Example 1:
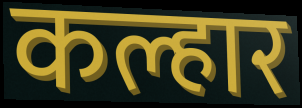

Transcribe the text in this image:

कल्हार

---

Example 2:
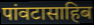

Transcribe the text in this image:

पांवटासाहिब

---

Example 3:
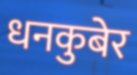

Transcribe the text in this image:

धनकुबेर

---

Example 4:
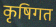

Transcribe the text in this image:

कृषिगत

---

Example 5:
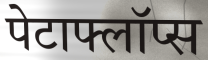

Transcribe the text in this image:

पेटाफ्लॉप्स